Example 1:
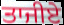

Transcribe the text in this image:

ਤਾਜੀਏ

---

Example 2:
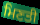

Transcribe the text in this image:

ਮਿਣਤੀ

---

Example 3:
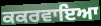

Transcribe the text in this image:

ਕਕਰਵਾਇਆ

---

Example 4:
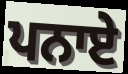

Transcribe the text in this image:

ਪਨਾਏ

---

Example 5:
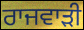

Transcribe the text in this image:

ਰਾਜਵਾੜੀ